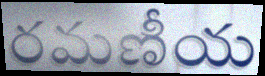
రమణీయ